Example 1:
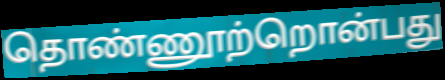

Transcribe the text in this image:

தொண்ணூற்றொன்பது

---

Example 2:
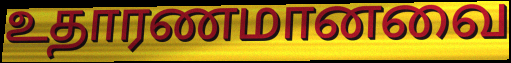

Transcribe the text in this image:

உதாரணமானவை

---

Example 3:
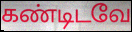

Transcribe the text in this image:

கண்டிடவே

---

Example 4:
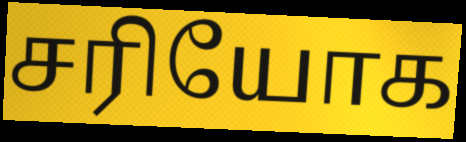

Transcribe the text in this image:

சரியோக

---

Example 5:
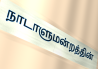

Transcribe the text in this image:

நாடாளுமன்றத்தின்